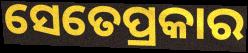
ସେତେପ୍ରକାର